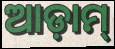
ଆଡ଼ାମ୍